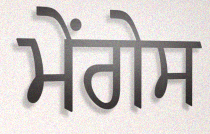
ਮੇਂਗੇਸ